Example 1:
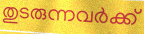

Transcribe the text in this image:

തുടരുന്നവർക്ക്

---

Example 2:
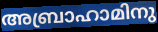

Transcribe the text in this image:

അബ്രാഹാമിനു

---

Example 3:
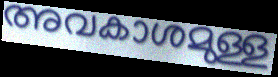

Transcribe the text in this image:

അവകാശമുള്ള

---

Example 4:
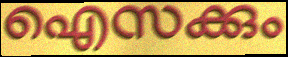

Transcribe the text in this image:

ഐസക്കും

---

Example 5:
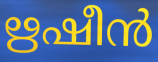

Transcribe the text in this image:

ഋഷീൻ